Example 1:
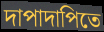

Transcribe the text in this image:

দাপাদাপিতে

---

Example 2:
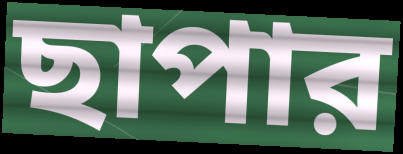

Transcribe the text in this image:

ছাপার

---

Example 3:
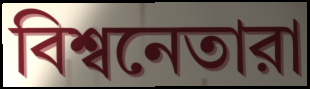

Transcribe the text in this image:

বিশ্বনেতারা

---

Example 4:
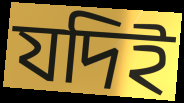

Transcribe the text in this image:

যদিই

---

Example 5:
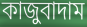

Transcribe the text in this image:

কাজুবাদাম